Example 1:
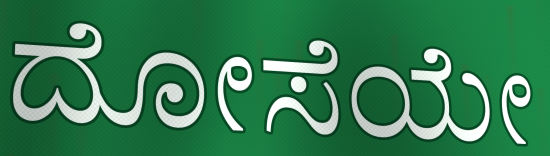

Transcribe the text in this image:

ದೋಸೆಯೇ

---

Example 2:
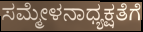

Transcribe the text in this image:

ಸಮ್ಮೇಳನಾಧ್ಯಕ್ಷತೆಗೆ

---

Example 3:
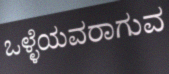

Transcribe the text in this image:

ಒಳ್ಳೆಯವರಾಗುವ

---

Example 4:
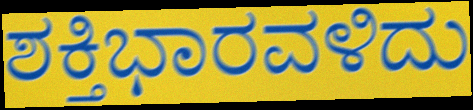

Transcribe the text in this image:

ಶಕ್ತಿಭಾರವಳಿದು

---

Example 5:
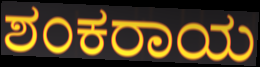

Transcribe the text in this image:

ಶಂಕರಾಯ